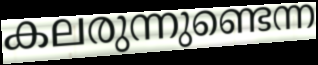
കലരുന്നുണ്ടെന്ന